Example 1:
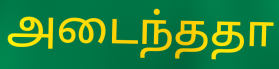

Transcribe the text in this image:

அடைந்ததா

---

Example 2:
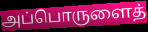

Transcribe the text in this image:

அப்பொருளைத்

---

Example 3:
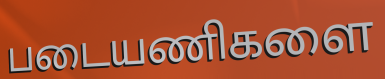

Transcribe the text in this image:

படையணிகளை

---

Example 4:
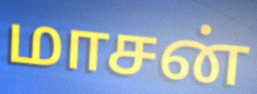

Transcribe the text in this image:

மாசன்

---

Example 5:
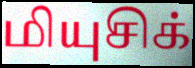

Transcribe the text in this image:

மியுசிக்